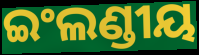
ଇଂଲଣ୍ଡୀୟ